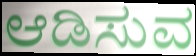
ಆಡಿಸುವ